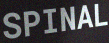
SPINAL